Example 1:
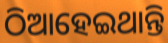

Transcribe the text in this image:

ଠିଆହେଇଥାନ୍ତି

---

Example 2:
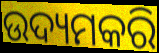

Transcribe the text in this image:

ଉଦ୍ୟମକରି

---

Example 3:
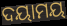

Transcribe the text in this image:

ଦୟାମୟ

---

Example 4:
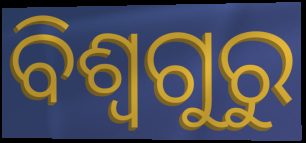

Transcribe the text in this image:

ବିଶ୍ୱଗୁରୁ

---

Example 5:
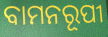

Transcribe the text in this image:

ବାମନରୂପୀ